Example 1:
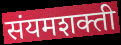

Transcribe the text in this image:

संयमशक्ती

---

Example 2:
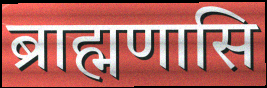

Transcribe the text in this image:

ब्राह्मणासि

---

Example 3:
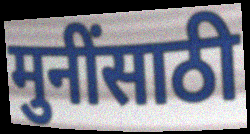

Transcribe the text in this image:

मुनींसाठी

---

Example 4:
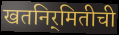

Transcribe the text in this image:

खतनिर्मितीची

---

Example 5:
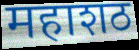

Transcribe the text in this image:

महाशठ